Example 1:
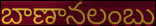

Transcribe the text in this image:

బాణానలంబు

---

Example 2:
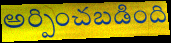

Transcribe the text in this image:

అర్పించబడింది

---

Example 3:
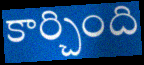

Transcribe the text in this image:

కార్చింది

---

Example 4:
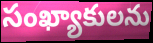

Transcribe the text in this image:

సంఖ్యాకులను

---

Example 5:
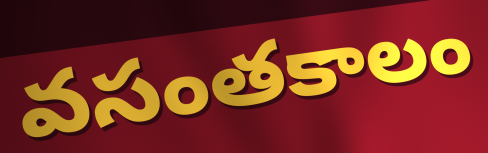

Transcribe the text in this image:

వసంతకాలం